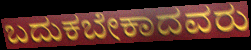
ಬದುಕಬೇಕಾದವರು